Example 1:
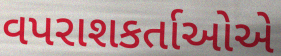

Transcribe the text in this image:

વપરાશકર્તાઓએ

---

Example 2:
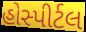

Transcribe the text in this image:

હોસ્પીર્ટલ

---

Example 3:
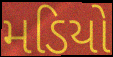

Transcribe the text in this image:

મડિયો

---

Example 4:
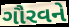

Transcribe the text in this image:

ગૌરવને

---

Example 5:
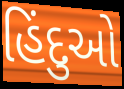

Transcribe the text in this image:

હિંદુઓ